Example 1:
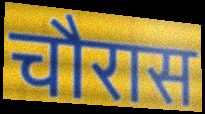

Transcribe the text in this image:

चौरास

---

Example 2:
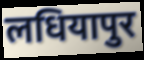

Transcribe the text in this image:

लधियापुर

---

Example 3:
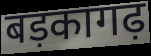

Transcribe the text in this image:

बड़कागढ़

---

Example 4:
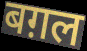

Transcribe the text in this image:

बग़ल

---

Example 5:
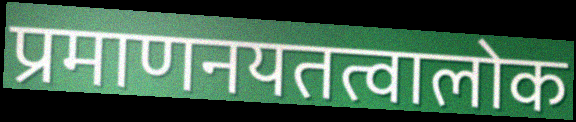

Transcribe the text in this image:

प्रमाणनयतत्वालोक